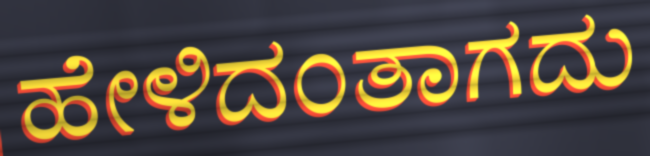
ಹೇಳಿದಂತಾಗದು